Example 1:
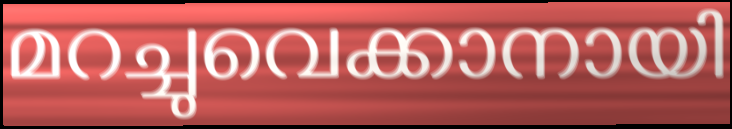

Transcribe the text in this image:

മറച്ചുവെക്കാനായി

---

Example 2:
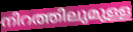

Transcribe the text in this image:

നിറത്തിലുമുള്ള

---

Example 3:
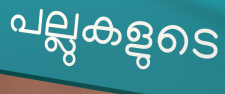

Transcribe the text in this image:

പല്ലുകളുടെ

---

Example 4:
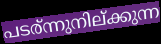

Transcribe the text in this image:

പടര്ന്നുനില്ക്കുന്ന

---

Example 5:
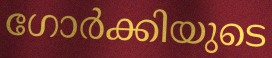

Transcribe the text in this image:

ഗോർക്കിയുടെ